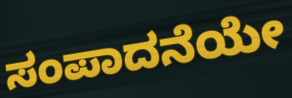
ಸಂಪಾದನೆಯೇ